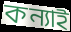
কন্যাই